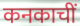
कनकाचीं